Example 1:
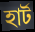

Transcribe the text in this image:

হার্ট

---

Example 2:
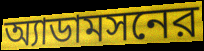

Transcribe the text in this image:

অ্যাডামসনের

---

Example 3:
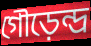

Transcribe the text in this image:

গৌড়েন্দ্র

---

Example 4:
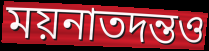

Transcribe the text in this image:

ময়নাতদন্তও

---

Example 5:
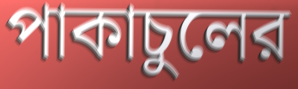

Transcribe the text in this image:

পাকাচুলের